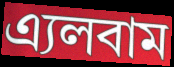
এ্যলবাম